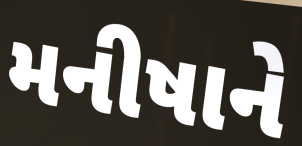
મનીષાને